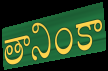
తానింకా